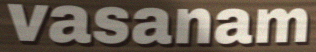
vasanam